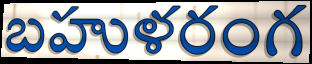
బహుళరంగ